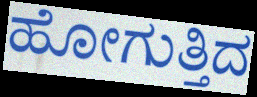
ಹೋಗುತ್ತಿದ